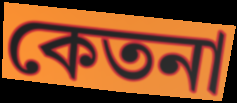
কেতনা